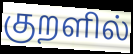
குறளில்